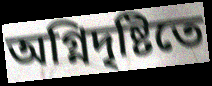
অগ্নিদৃষ্টিতে